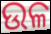
ଉଳ